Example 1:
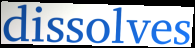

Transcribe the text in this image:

dissolves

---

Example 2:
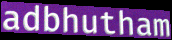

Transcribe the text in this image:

adbhutham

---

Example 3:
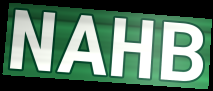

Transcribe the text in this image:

NAHB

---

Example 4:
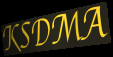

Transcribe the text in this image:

KSDMA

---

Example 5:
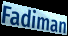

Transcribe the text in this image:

Fadiman